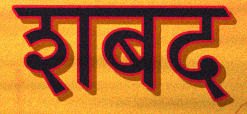
शबद